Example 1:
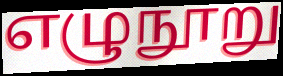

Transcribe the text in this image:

எழுநூறு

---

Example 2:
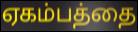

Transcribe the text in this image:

ஏகம்பத்தை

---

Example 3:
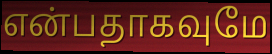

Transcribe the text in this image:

என்பதாகவுமே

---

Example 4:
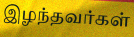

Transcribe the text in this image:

இழந்தவர்கள்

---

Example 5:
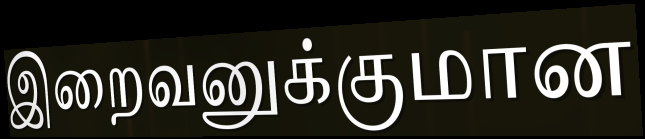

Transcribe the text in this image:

இறைவனுக்குமான